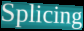
Splicing